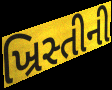
ખ્રિસ્તીની